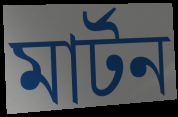
মার্টন